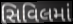
સિવિલમાં